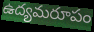
ఉద్యమరూపం